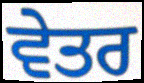
ਵੇਤਰ